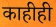
काहीही